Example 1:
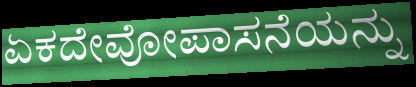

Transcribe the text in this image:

ಏಕದೇವೋಪಾಸನೆಯನ್ನು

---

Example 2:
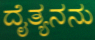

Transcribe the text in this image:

ದೈತ್ಯನನು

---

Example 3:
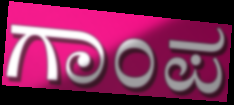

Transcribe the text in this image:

ಗಾಂಪ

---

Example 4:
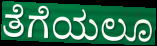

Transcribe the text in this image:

ತೆಗೆಯಲೂ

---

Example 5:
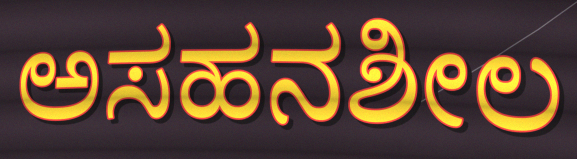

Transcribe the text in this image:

ಅಸಹನಶೀಲ